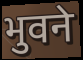
भुवने